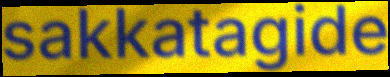
sakkatagide